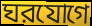
ঘরযোগে